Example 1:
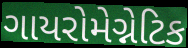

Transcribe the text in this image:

ગાયરોમેગ્નેટિક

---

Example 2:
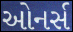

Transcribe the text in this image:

ઓનર્સ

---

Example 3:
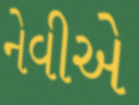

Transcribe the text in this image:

નેવીએ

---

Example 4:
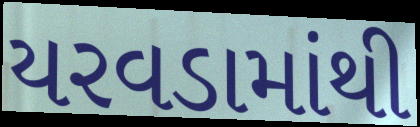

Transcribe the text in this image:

યરવડામાંથી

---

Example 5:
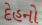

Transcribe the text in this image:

દેહનો